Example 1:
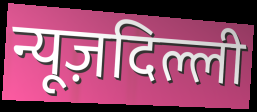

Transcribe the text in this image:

न्यूज़दिल्ली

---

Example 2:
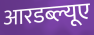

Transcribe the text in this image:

आरडब्ल्यूए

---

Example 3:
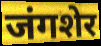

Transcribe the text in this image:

जंगशेर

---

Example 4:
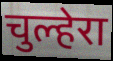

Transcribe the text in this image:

चुल्हेरा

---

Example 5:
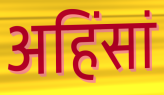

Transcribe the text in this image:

अहिंसां